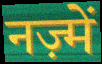
नज़्में